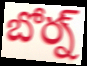
బోర్న్